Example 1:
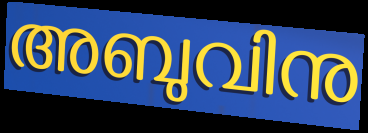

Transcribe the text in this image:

അബുവിനു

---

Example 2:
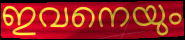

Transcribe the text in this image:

ഇവനെയും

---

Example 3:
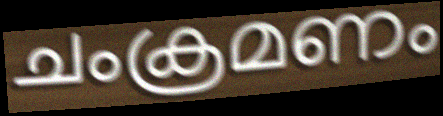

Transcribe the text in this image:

ചംക്രമണം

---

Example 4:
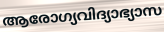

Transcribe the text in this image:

ആരോഗ്യവിദ്യാഭ്യാസ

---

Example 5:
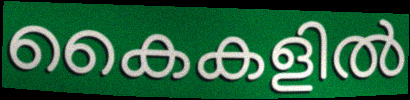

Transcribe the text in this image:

കൈകളിൽ